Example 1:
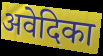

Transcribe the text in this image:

अवेदिका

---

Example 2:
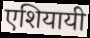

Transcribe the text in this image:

एशियायी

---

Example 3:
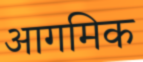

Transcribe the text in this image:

आगमिक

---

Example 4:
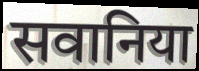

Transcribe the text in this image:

सवानिया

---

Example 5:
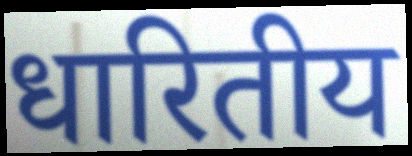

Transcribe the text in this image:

धारितीय